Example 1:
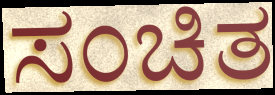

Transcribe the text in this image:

ಸಂಚಿತ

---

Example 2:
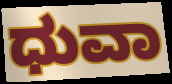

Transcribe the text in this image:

ಧುವಾ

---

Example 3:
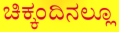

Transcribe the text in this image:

ಚಿಕ್ಕಂದಿನಲ್ಲೂ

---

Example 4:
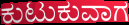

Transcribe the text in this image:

ಕುಟುಕುವಾಗ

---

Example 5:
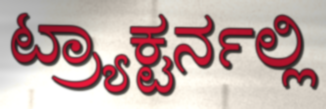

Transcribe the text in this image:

ಟ್ರ್ಯಾಕ್ಟರ್ನಲ್ಲಿ